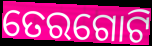
ତେରଗୋଟି